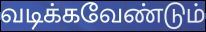
வடிக்கவேண்டும்